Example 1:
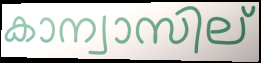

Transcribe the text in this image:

കാന്വാസില്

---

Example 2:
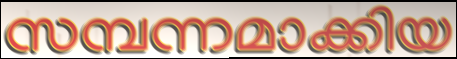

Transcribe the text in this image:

സമ്പന്നമാക്കിയ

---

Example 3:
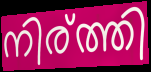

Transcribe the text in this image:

നിര്ത്തി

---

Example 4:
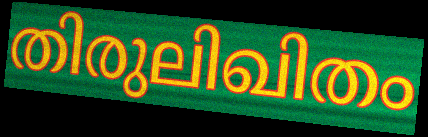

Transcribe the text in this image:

തിരുലിഖിതം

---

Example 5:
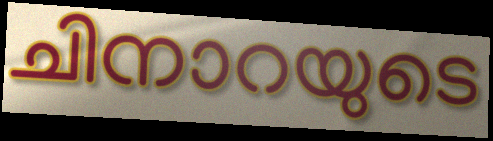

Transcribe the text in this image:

ചിനാറയുടെ